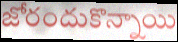
జోరందుకొన్నాయి